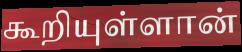
கூறியுள்ளான்